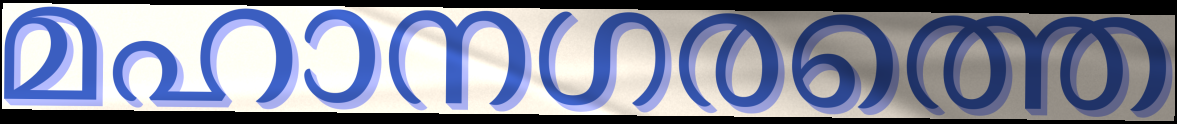
മഹാനഗരത്തെ